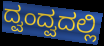
ದ್ವಂದ್ವದಲ್ಲಿ